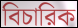
বিচারিক